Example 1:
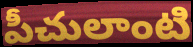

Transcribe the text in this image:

పీచులాంటి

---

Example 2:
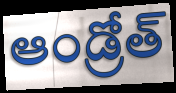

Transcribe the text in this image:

ఆండ్రోత్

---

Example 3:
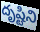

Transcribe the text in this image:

దృష్టిని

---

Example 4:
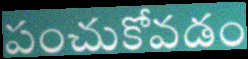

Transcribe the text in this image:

పంచుకోవడం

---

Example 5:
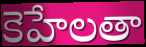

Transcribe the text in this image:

కెహేలతా